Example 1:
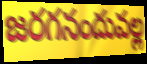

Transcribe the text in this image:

జరగనందువల్ల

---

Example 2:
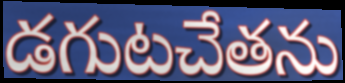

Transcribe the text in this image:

డగుటచేతను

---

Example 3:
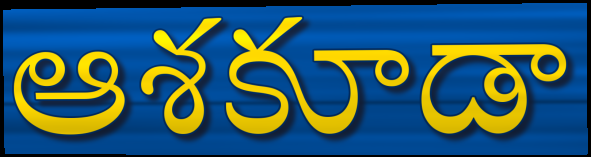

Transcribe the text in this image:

ఆశకూడా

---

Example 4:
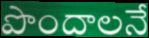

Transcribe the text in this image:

పొందాలనే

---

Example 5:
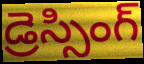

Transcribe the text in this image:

డ్రెస్సింగ్